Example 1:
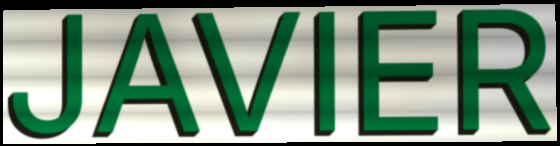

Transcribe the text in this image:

JAVIER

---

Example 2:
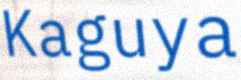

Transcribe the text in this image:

Kaguya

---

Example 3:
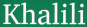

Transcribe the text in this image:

Khalili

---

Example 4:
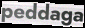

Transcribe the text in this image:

peddaga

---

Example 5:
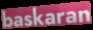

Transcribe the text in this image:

baskaran